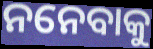
ନନେବାକୁ